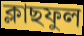
ক্লাছফুল